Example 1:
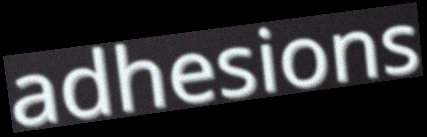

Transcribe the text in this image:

adhesions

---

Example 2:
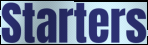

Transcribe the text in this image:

Starters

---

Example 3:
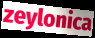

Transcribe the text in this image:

zeylonica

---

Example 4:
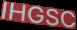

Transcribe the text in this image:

IHGSC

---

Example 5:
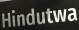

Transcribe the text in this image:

Hindutwa